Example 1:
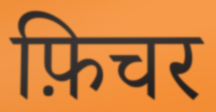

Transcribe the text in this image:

फ़िचर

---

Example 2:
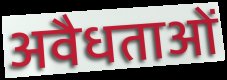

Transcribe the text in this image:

अवैधताओं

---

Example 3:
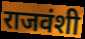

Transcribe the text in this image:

राजवंशी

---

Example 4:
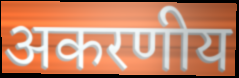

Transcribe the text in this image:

अकरणीय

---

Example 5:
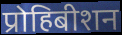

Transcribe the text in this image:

प्रोहिबीशन